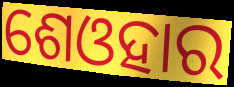
ଶେଓହାର